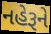
નહેરૂને